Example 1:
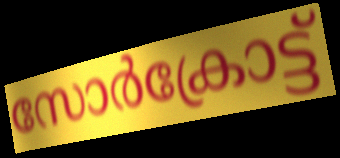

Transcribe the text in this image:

സോർക്രോട്ട്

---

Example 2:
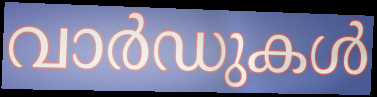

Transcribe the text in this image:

വാർഡുകൾ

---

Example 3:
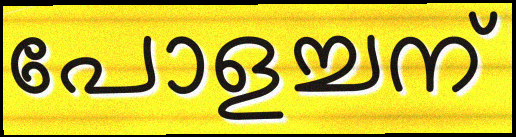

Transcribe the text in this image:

പോളച്ചന്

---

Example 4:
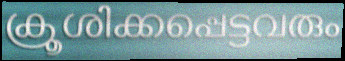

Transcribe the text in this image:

ക്രൂശിക്കപ്പെട്ടവരും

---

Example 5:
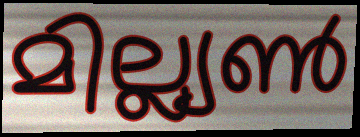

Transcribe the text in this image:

മില്ല്യൺ